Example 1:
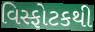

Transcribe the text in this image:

વિસ્ફોટકથી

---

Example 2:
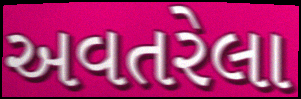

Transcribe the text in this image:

અવતરેલા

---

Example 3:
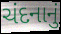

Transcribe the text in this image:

ચંદનાનું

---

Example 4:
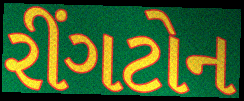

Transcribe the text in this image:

રીંગટોન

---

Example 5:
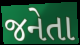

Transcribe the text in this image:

જનેતા